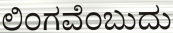
ಲಿಂಗವೆಂಬುದು